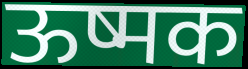
ऊष्मक